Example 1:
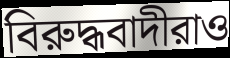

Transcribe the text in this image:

বিরুদ্ধবাদীরাও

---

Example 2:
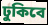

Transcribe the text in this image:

ঢুকিবে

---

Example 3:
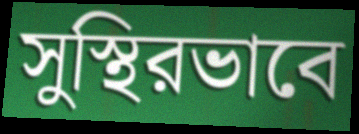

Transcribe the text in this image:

সুস্থিরভাবে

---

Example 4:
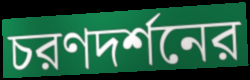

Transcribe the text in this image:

চরণদর্শনের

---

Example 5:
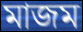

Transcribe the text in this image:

মাজম